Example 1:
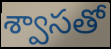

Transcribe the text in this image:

శ్వాసతో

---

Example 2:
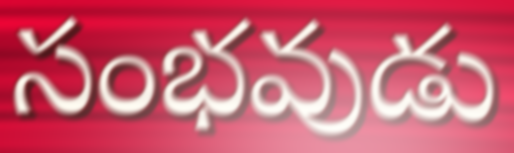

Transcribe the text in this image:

సంభవుడు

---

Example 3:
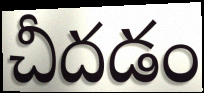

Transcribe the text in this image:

చీదడం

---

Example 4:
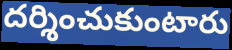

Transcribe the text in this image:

దర్శించుకుంటారు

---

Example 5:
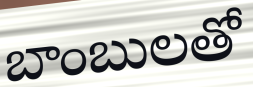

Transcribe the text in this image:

బాంబులతో